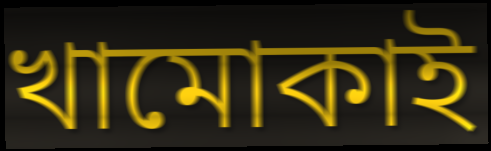
খামোকাই